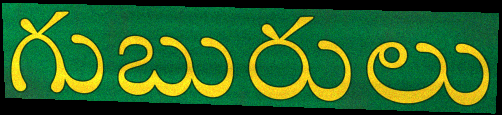
గుబురులు